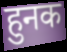
हुनक